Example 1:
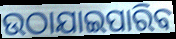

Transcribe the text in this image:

ଉଠାଯାଇପାରିବ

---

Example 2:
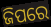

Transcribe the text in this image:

ଜିପରେ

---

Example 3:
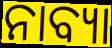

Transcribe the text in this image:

ନାବ୍ୟା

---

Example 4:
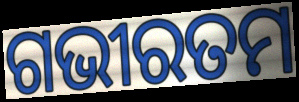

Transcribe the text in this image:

ଗଭୀରତମ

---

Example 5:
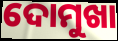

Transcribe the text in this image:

ଦୋମୁଖା